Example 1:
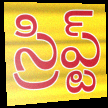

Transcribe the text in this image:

స్రిప్ట్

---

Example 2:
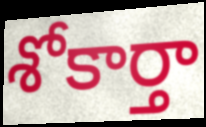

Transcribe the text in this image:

శోకార్తా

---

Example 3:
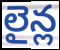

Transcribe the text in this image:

లైన్ల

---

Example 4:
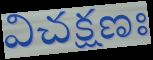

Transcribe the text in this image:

విచక్షణః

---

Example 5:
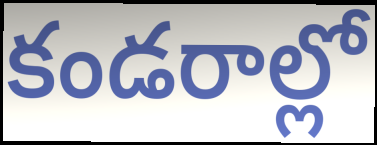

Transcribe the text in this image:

కండరాల్లో